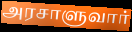
அரசாளுவார்